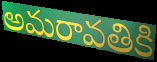
అమరావతికి